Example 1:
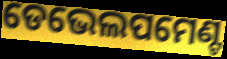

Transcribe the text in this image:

ଡେଭେଲପମେଣ୍ଟ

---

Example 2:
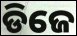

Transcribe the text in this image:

ଡିଜେ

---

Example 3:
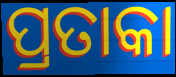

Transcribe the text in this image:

ପ୍ରତାକା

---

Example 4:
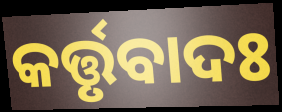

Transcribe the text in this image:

କର୍ତ୍ତୃବାଦଃ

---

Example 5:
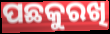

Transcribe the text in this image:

ପଛକୁରଖି